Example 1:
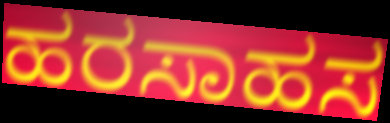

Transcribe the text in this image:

ಹರಸಾಹಸ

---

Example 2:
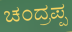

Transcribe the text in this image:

ಚಂದ್ರಪ್ಪ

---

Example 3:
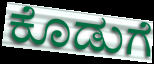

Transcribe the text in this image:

ಕೊಡುಗೆ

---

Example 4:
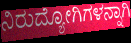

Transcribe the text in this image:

ನಿರುದ್ಯೋಗಿಗಳನ್ನಾಗಿ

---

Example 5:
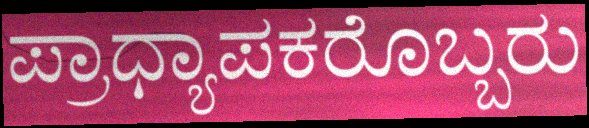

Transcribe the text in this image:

ಪ್ರಾಧ್ಯಾಪಕರೊಬ್ಬರು